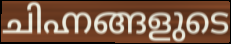
ചിഹ്നങ്ങളുടെ